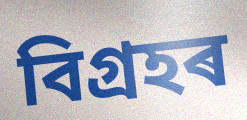
বিগ্ৰহৰ